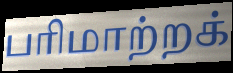
பரிமாற்றக்